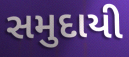
સમુદાયી